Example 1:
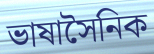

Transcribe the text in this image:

ভাষাসৈনিক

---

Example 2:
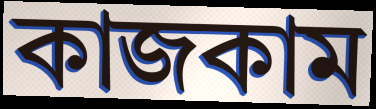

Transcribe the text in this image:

কাজকাম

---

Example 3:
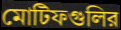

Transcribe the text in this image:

মোটিফগুলির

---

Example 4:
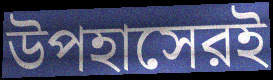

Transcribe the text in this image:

উপহাসেরই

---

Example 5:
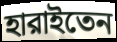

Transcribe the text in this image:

হারাইতেন